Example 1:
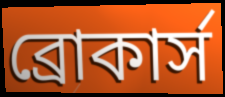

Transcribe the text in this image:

ব্রোকার্স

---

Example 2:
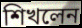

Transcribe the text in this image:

শিখলেন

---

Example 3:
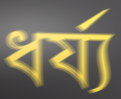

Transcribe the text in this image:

ধর্য্য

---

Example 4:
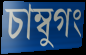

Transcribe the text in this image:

চাম্বুগং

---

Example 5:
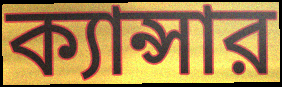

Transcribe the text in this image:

ক্যান্সার